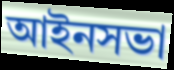
আইনসভা